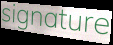
signature